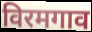
विरमगाव